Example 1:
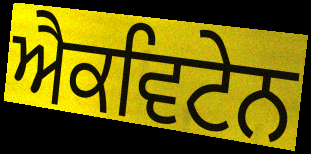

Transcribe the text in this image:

ਐਕਵਿਟੇਨ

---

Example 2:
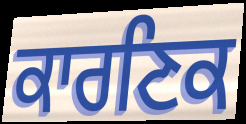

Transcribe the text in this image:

ਕਾਰਣਿਕ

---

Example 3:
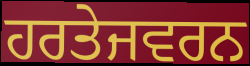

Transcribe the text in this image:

ਹਰਤੇਜਵਰਨ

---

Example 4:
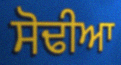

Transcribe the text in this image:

ਸੋਢੀਆ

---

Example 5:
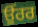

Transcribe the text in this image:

ਉੱਰਰ